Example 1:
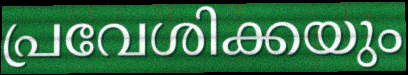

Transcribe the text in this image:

പ്രവേശിക്കയും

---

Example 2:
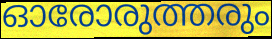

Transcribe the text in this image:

ഓരോരുത്തരും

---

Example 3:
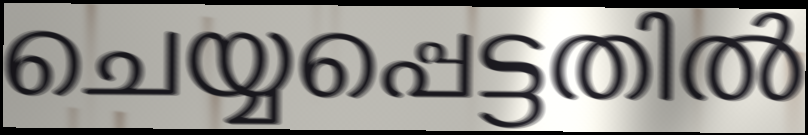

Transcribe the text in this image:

ചെയ്യപ്പെട്ടതിൽ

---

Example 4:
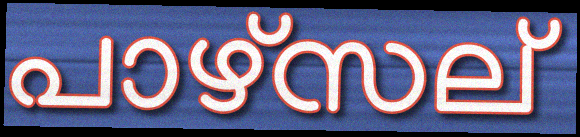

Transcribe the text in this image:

പാഴ്സല്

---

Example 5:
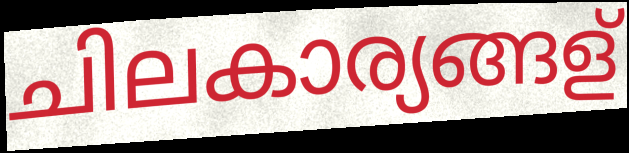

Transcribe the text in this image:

ചിലകാര്യങ്ങള്